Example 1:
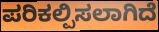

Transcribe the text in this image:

ಪರಿಕಲ್ಪಿಸಲಾಗಿದೆ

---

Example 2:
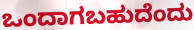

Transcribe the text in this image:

ಒಂದಾಗಬಹುದೆಂದು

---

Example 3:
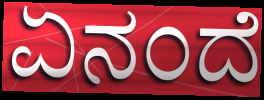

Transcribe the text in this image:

ಏನಂದೆ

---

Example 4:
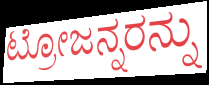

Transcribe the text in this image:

ಟ್ರೋಜನ್ನರನ್ನು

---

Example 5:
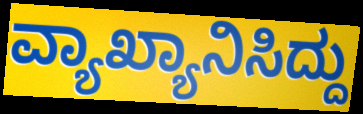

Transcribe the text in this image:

ವ್ಯಾಖ್ಯಾನಿಸಿದ್ದು